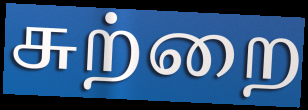
சுற்றை